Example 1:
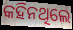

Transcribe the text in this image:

କହିନଥିଲେ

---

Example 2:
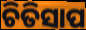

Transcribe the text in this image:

ଚିତିସାପ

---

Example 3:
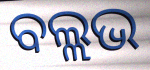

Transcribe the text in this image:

ବଲ୍ଲଭ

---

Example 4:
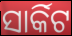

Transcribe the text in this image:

ସାର୍କିଟ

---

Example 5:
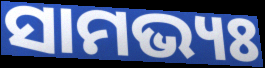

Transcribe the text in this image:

ସାମଭ୍ୟଃ